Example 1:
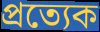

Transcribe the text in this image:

প্রত্যেক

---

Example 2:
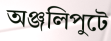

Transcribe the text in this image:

অঞ্জলিপুটে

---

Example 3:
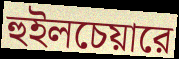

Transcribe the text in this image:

হুইলচেয়ারে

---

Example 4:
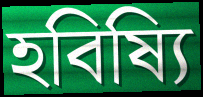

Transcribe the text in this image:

হবিষ্যি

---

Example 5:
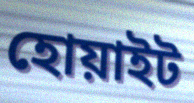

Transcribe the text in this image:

হোয়াইট